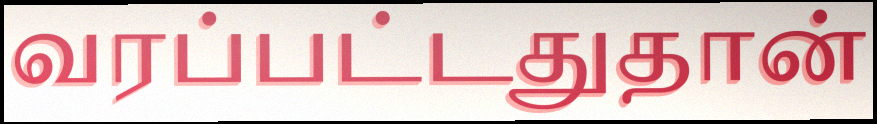
வரப்பட்டதுதான்